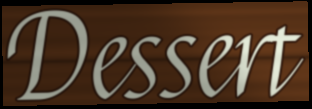
Dessert